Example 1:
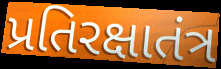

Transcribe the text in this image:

પ્રતિરક્ષાતંત્ર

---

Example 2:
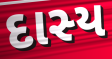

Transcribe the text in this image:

દાસ્ય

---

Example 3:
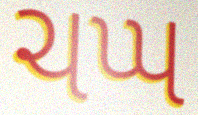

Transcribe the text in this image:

ચપ્પ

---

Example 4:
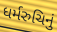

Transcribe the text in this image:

ધર્મરુચિનું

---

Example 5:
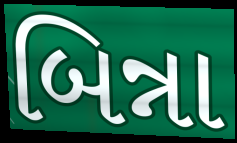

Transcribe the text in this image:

બિન્ના